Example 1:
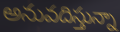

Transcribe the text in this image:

అనువదిస్తున్నా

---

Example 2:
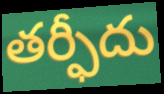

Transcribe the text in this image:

తర్ఫీదు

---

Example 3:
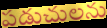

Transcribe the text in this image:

పడుచులను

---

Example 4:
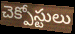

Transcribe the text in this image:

చెక్పోస్టులు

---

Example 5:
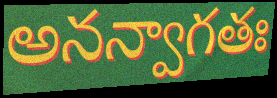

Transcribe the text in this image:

అనన్వాగతః